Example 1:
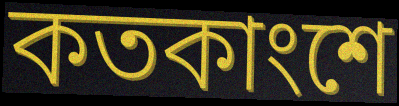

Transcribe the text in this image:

কতকাংশে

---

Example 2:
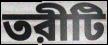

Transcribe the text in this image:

তরীটি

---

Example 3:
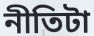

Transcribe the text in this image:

নীতিটা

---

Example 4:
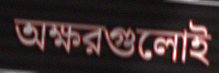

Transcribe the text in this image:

অক্ষরগুলোই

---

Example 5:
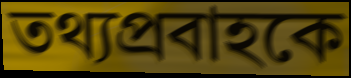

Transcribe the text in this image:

তথ্যপ্রবাহকে